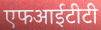
एफआईटीटी